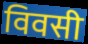
विवसी